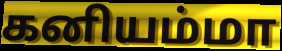
கனியம்மா